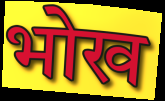
भोख